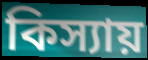
কিস্যায়